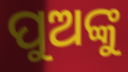
ପୁଅଙ୍କୁ